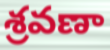
శ్రవణా